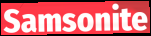
Samsonite